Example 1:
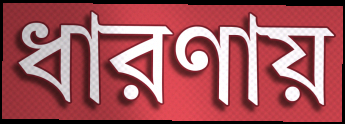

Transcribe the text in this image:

ধারণায়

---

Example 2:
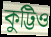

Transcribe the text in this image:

কুট্টিও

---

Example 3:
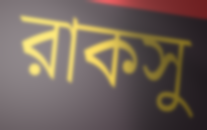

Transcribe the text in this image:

রাকসু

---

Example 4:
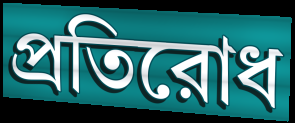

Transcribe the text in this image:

প্রতিরোধ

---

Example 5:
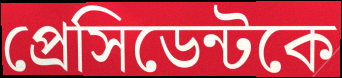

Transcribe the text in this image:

প্রেসিডেন্টকে